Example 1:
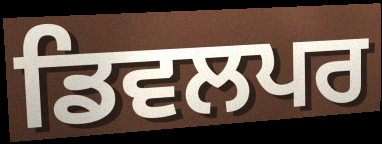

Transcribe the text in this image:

ਡਿਵਲਪਰ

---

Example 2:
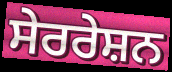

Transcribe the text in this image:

ਸੇਰਰੇਸ਼ਨ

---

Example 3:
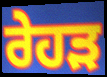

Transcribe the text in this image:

ਰੇਹੜ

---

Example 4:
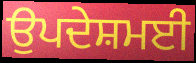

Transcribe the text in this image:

ਉਪਦੇਸ਼ਮਈ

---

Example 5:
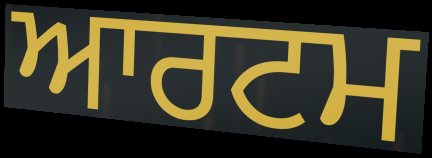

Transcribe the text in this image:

ਆਰਟਮ